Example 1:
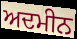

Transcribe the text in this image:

ਅਦਮੀਨ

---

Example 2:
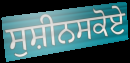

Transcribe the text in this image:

ਸੁਸ਼ੀਨਸਕੋਏ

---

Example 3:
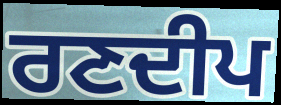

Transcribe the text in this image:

ਰਣਦੀਪ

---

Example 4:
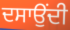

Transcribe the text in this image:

ਦਸਾਉਂਦੀ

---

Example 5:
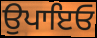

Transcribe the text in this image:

ਉਪਾਇਓ